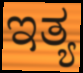
ಇತ್ಯ